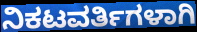
ನಿಕಟವರ್ತಿಗಳಾಗಿ